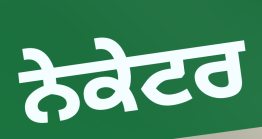
ਨੇਕੇਟਰ